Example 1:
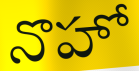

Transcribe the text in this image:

నొహో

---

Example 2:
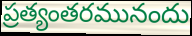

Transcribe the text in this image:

ప్రత్యంతరమునందు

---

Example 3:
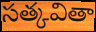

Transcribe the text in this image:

సత్కవితా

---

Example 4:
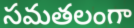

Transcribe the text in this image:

సమతలంగా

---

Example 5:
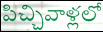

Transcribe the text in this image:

పిచ్చివాళ్లలో